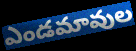
ఎండమావుల